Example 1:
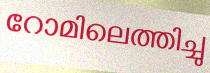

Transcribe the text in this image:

റോമിലെത്തിച്ചു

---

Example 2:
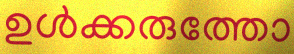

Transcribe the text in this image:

ഉൾക്കരുത്തോ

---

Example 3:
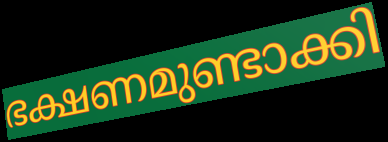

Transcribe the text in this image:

ഭക്ഷണമുണ്ടാക്കി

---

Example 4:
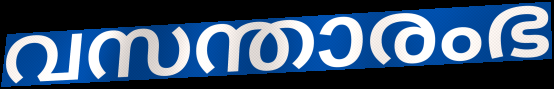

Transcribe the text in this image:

വസന്താരംഭ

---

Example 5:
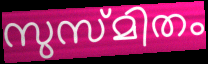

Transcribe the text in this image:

സുസ്മിതം